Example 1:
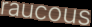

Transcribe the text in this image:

raucous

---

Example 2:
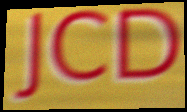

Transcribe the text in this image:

JCD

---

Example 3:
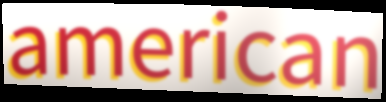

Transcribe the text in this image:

american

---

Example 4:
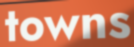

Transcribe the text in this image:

towns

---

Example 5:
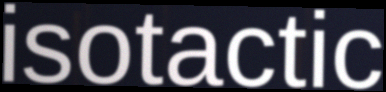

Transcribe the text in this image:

isotactic